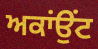
ਅਕਾਂਉਂਟ